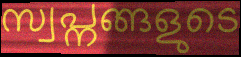
സ്വപ്നങ്ങളുടെ